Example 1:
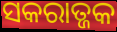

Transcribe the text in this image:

ସକରାତ୍ଜକ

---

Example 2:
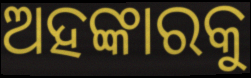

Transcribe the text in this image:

ଅହଙ୍କାରକୁ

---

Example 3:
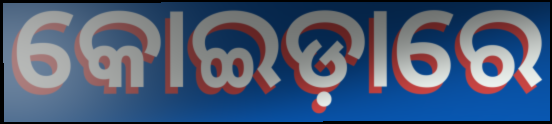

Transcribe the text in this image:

କୋଇଡ଼ାରେ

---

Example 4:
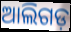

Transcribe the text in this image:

ଆଲିଗଡ଼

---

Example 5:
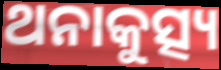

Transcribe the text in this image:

ଥନାକୁତ୍ସ୍ୟ